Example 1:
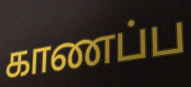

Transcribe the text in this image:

காணப்ப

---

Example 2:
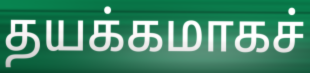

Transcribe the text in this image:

தயக்கமாகச்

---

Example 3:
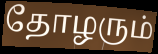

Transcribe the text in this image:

தோழரும்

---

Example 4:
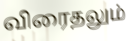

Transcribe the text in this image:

விரைதலும்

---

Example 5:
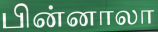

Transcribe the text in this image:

பின்னாலா